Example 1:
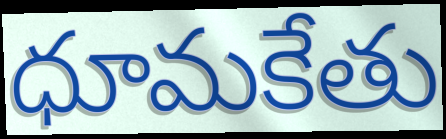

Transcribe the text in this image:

ధూమకేతు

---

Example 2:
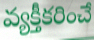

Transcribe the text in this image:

వ్యక్తీకరించే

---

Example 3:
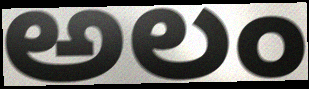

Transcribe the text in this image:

అలం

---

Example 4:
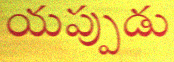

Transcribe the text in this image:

యప్పుడు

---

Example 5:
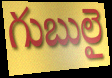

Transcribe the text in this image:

గుబులై